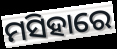
ମସିହାରେ